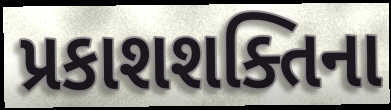
પ્રકાશશક્તિના